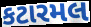
કટારમલ